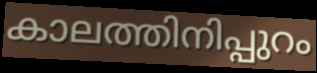
കാലത്തിനിപ്പുറം